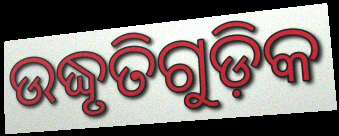
ଉଦ୍ଧୃତିଗୁଡ଼ିକ